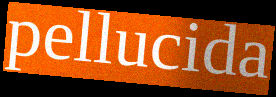
pellucida